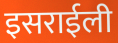
इसराईली